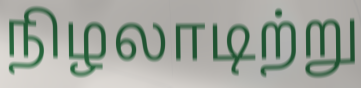
நிழலாடிற்று